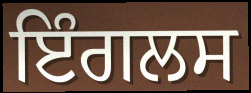
ਇੰਗਲਸ